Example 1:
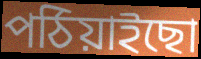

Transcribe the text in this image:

পঠিয়াইছো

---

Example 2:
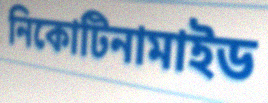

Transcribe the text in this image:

নিকোটিনামাইড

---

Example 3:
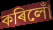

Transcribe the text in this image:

কৰিলোঁ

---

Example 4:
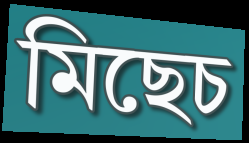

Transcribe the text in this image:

মিছেচ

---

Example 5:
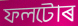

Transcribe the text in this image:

ফলটোৰ